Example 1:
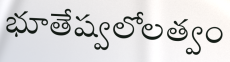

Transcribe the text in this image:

భూతేష్వలోలత్వం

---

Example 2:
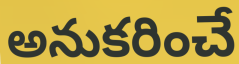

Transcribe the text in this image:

అనుకరించే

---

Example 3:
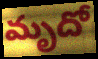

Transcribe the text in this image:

మృదో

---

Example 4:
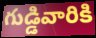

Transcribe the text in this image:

గుడ్డివారికి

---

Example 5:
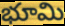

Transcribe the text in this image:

భూమి